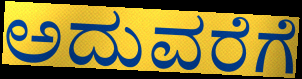
ಅದುವರೆಗೆ